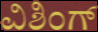
ವಿಶಿಂಗ್